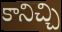
కానిచ్చి